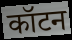
कॉटन